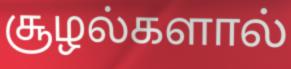
சூழல்களால்